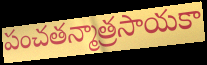
పంచతన్మాత్రసాయకా